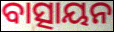
ବାତ୍ସାୟନ